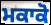
ਮਕਾਕੋ